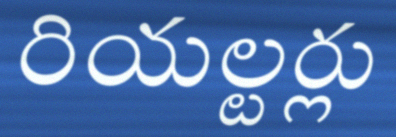
రియల్టర్లు